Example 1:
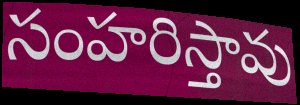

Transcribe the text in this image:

సంహరిస్తావు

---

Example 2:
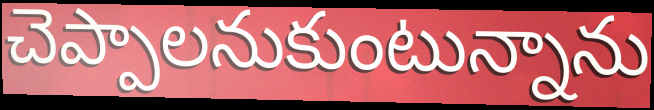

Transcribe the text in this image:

చెప్పాలనుకుంటున్నాను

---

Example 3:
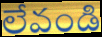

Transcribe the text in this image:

లేవండి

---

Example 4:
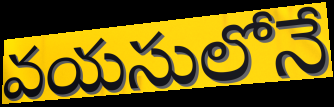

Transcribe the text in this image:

వయసులోనే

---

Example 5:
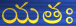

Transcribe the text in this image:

యతః